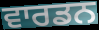
ਵਾਰਡਨ